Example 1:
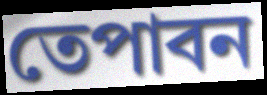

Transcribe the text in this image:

তেপাবন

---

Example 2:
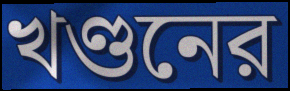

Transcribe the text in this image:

খণ্ডনের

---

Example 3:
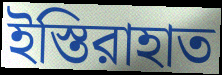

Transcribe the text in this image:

ইস্তিরাহাত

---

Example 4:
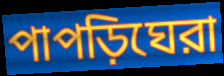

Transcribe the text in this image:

পাপড়িঘেরা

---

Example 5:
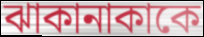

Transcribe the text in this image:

ঝাকানাকাকে